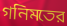
গনিমতের